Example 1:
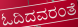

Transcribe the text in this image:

ಓದಿದವರಂತೆ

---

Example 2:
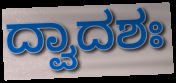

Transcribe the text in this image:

ದ್ವಾದಶಃ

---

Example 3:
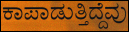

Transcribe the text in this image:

ಕಾಪಾಡುತ್ತಿದ್ದೆವು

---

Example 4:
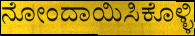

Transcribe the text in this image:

ನೋಂದಾಯಿಸಿಕೊಳ್ಳಿ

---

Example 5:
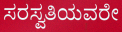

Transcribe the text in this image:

ಸರಸ್ವತಿಯವರೇ